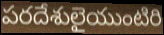
పరదేశులైయుంటిరి